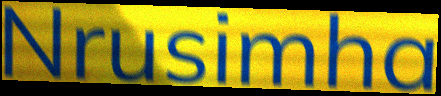
Nrusimha